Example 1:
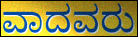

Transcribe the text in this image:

ವಾದವರು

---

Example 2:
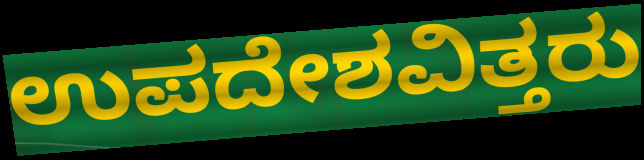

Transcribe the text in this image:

ಉಪದೇಶವಿತ್ತರು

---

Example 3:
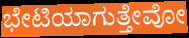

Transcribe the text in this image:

ಭೇಟಿಯಾಗುತ್ತೇವೋ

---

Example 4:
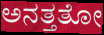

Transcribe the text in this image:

ಅನತ್ತತೋ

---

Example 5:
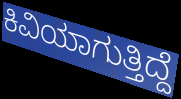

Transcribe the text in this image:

ಕಿವಿಯಾಗುತ್ತಿದ್ದೆ